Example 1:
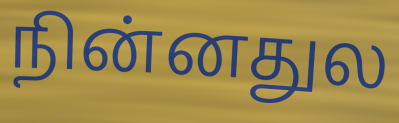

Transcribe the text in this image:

நின்னதுல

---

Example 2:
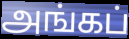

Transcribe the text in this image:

அங்கப்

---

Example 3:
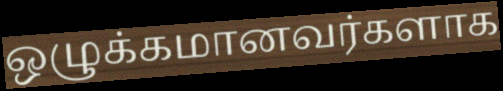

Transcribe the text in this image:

ஒழுக்கமானவர்களாக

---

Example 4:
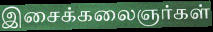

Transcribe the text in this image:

இசைக்கலைஞர்கள்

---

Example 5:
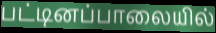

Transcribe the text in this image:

பட்டினப்பாலையில்